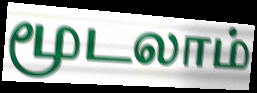
மூடலாம்